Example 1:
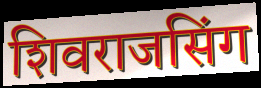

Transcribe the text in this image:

शिवराजसिंग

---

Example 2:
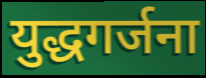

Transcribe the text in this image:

युद्धगर्जना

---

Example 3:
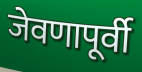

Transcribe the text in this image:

जेवणापूर्वी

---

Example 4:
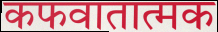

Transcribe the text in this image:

कफवातात्मक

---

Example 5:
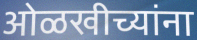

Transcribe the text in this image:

ओळखीच्यांना